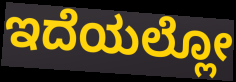
ಇದೆಯಲ್ಲೋ